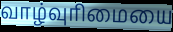
வாழ்வுரிமையை